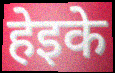
हेइके